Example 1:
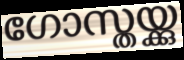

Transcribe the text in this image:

ഗോസ്തയ്ക്കു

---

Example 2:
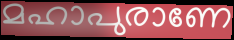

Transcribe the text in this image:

മഹാപുരാണേ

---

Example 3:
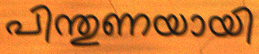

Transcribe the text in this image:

പിന്തുണയായി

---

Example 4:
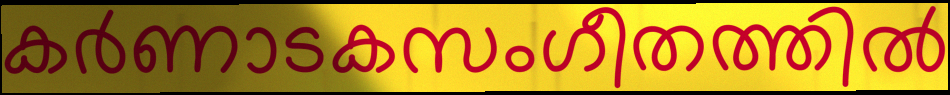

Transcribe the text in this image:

കർണാടകസംഗീതത്തിൽ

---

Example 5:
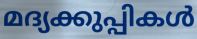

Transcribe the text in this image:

മദ്യക്കുപ്പികൾ